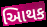
આિથક